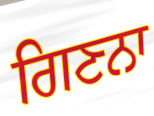
ਗਿਣਨਾ